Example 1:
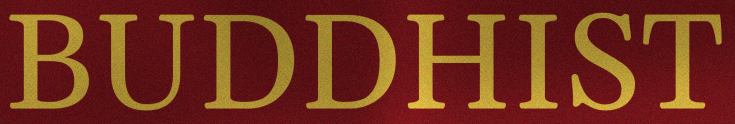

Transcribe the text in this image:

BUDDHIST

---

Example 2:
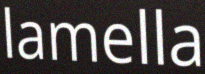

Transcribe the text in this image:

lamella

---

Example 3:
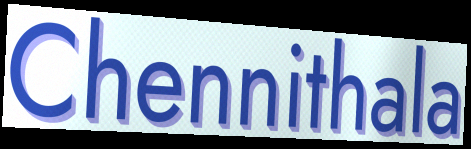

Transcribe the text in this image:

Chennithala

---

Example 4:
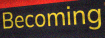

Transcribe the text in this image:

Becoming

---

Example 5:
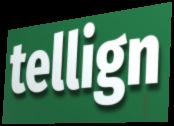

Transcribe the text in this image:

tellign